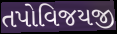
તપોવિજયજી